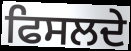
ਫਿਸਲਦੇ